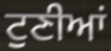
ਟੁਣੀਆਂ